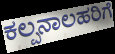
ಕಲ್ಪನಾಲಹರಿಗೆ